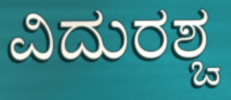
ವಿದುರಶ್ಚ